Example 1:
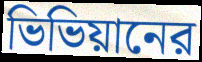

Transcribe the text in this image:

ভিভিয়ানের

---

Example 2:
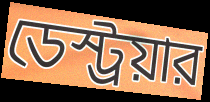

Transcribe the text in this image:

ডেস্ট্রয়ার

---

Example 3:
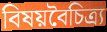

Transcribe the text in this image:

বিষয়বৈচিত্র্য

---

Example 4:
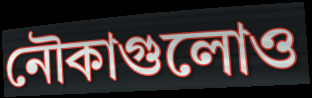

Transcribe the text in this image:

নৌকাগুলোও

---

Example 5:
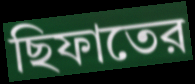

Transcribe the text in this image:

ছিফাতের